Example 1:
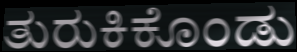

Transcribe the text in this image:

ತುರುಕಿಕೊಂಡು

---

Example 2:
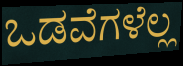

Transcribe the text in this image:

ಒಡವೆಗಳೆಲ್ಲ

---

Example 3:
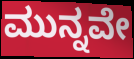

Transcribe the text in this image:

ಮುನ್ನವೇ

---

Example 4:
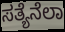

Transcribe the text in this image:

ಸತ್ಯೆನೆಲಾ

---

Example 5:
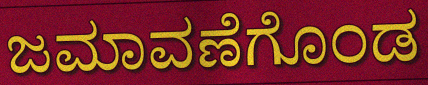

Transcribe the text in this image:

ಜಮಾವಣೆಗೊಂಡ